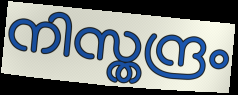
നിസ്തന്ദ്രം